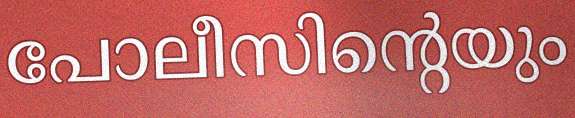
പോലീസിന്റെയും